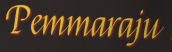
Pemmaraju